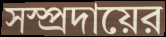
সস্প্রদায়ের